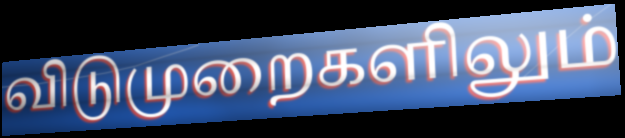
விடுமுறைகளிலும்